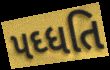
પઘ્ધતિ